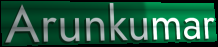
Arunkumar